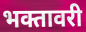
भक्तावरी